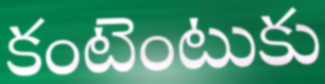
కంటెంటుకు